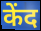
केंद